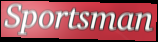
Sportsman